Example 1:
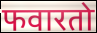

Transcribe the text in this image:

फवारतो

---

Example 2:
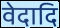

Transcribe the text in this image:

वेदादि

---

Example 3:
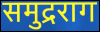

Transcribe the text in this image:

समुद्रराग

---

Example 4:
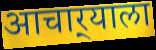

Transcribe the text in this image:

आचार्याला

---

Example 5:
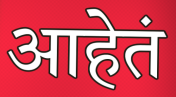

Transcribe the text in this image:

आहेतं